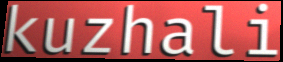
kuzhali